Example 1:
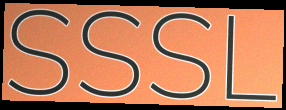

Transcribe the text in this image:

SSSL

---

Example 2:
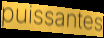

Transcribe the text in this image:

puissantes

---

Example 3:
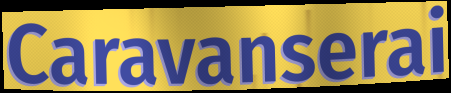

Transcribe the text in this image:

Caravanserai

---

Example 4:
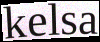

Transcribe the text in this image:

kelsa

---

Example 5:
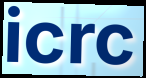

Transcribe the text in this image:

icrc